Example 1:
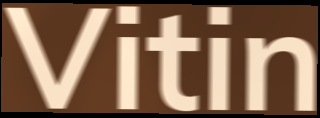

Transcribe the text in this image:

Vitin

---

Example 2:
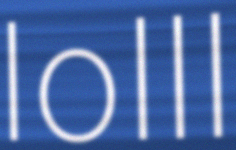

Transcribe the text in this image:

lolll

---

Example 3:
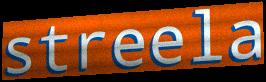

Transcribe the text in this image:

streela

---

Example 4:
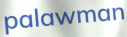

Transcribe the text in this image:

palawman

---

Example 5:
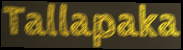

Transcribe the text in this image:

Tallapaka